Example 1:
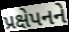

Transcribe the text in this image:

પ્રક્ષેપનને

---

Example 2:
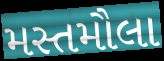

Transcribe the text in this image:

મસ્તમૌલા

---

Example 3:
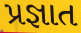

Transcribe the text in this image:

પ્રજ્ઞાત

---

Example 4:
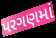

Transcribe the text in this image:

પરગણમાં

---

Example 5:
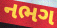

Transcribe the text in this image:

નભગ